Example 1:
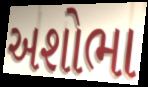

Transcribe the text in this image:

અશોભા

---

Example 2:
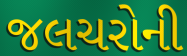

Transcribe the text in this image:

જલચરોની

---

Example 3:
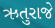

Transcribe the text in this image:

ઋતુરાજે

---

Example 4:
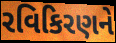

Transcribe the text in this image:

રવિકિરણને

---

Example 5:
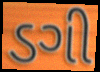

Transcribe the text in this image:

ડગી